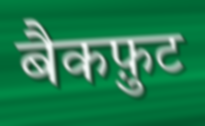
बैकफ़ुट